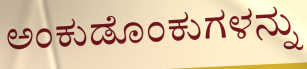
ಅಂಕುಡೊಂಕುಗಳನ್ನು